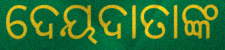
ଦେୟଦାତାଙ୍କ